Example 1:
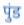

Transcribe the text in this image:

पुंड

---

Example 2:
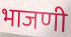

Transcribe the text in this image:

भाजणी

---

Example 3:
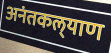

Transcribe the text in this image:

अनंतकल्याण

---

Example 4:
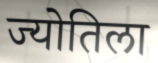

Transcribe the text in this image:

ज्योतिला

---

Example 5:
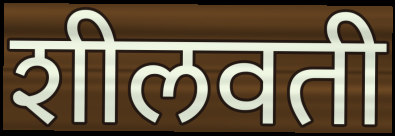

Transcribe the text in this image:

शीलवती